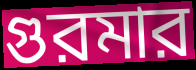
গুরমার